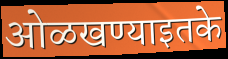
ओळखण्याइतके